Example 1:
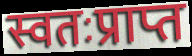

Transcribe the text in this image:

स्वतःप्राप्त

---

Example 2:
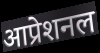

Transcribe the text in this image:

आप्रेशनल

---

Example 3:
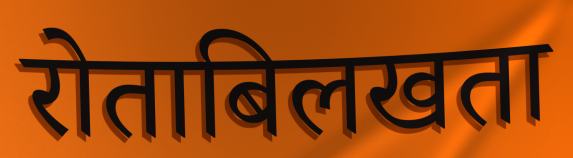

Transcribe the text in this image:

रोताबिलखता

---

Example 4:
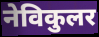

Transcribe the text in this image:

नेविकुलर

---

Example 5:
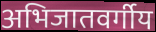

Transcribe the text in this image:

अभिजातवर्गीय